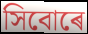
সিবোৰে